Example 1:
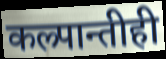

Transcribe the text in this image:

कल्पान्तीही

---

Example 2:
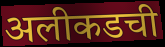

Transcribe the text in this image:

अलीकडची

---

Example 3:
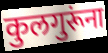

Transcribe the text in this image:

कुलगुरूंना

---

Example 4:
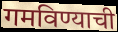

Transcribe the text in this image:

गमविण्याची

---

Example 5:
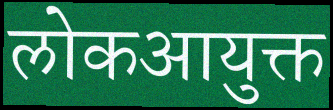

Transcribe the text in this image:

लोकआयुक्त